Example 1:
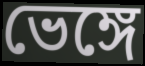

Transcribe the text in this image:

ভেঙ্গে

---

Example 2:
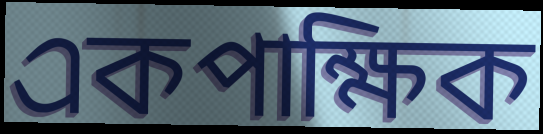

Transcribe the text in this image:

একপাক্ষিক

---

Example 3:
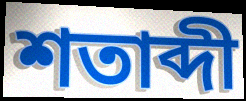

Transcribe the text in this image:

শতাব্দী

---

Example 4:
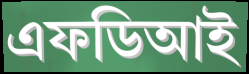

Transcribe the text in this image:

এফডিআই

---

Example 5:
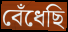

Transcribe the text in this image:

বেঁধেছি